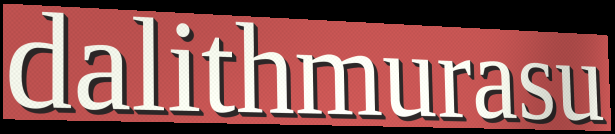
dalithmurasu